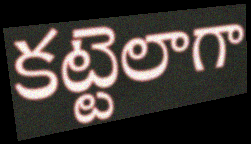
కట్టెలాగా